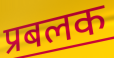
प्रबलक